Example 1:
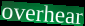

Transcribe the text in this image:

overhear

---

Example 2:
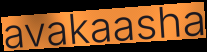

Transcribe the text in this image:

avakaasha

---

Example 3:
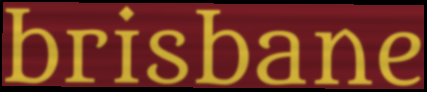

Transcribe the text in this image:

brisbane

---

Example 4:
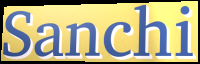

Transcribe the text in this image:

Sanchi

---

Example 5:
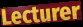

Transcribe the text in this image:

Lecturer